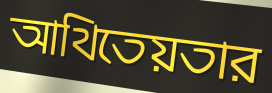
আথিতেয়তার